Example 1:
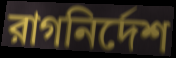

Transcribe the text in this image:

রাগনির্দেশ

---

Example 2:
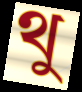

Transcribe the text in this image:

থু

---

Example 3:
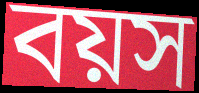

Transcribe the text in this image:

বয়স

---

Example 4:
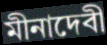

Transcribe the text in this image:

মীনাদেবী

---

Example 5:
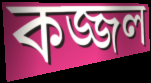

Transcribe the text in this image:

কজ্জল